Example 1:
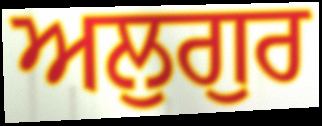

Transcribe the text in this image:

ਅਲੁਗੁਰ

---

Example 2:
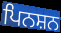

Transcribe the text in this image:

ਪਿਨਸ਼ਨ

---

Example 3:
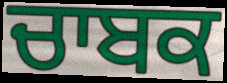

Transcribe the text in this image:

ਚਾਬਕ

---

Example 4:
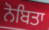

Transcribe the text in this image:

ਨੋਬਿਤਾ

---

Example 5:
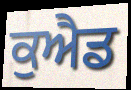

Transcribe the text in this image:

ਕੁਐਡ